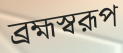
ব্রহ্মস্বরূপ